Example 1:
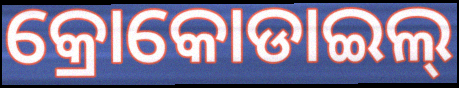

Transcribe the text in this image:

କ୍ରୋକୋଡାଇଲ୍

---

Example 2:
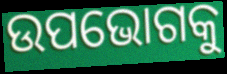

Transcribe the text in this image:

ଉପଭୋଗକୁ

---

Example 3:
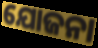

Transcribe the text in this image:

ଯୋଜନା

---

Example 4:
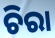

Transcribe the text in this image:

ଚିରା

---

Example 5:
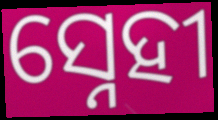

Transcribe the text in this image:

ସ୍ନେହୀ